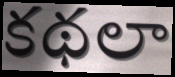
కథలా